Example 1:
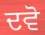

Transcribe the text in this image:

ਦਵੋ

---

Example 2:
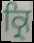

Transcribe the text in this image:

ਕ੍ਰਿ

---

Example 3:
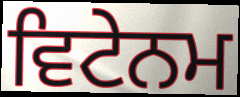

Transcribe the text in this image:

ਵਿਟੇਨਮ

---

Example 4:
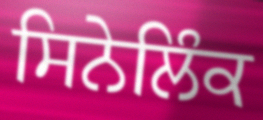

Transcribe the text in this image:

ਸਿਨੇਲਿੰਕ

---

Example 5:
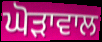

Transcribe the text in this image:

ਘੋੜਾਵਾਲ